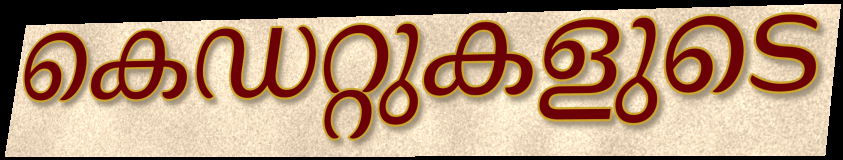
കെഡറ്റുകളുടെ